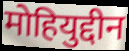
मोहियुद्दीन